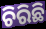
ଚିରିଛି